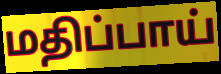
மதிப்பாய்